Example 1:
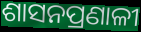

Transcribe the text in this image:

ଶାସନପ୍ରଣାଳୀ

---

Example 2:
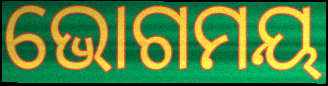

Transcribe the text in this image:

ଭୋଗମୟ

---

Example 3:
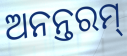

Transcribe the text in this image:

ଅନନ୍ତରମ୍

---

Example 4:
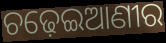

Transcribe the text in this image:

ଚଢ଼େଇଆଣୀର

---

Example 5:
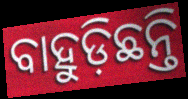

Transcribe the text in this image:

ବାହୁଡ଼ିଛନ୍ତି